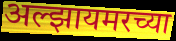
अल्झायमरच्या